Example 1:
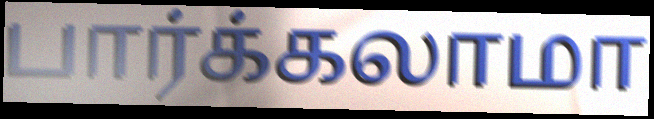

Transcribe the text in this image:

பார்க்கலாமா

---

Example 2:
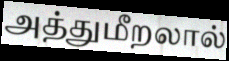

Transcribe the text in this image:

அத்துமீறலால்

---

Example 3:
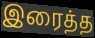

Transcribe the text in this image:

இரைத்த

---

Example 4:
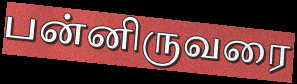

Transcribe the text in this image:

பன்னிருவரை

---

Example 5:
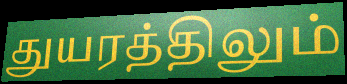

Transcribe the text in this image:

துயரத்திலும்